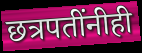
छत्रपतींनीही